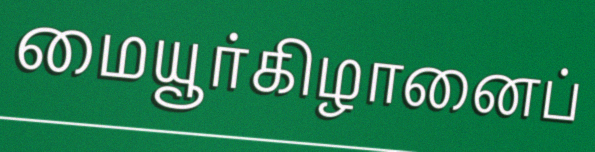
மையூர்கிழானைப்